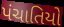
પંચાતિયો